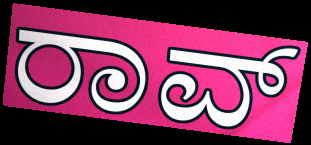
ರಾವ್